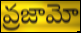
వ్రజామో